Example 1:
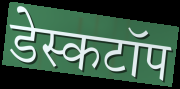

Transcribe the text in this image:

डेस्कटॉप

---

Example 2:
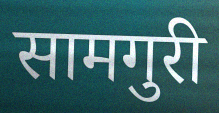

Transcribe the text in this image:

सामगुरी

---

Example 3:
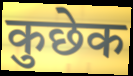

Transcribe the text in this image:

कुछेक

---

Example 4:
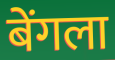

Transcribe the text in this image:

बेंगला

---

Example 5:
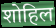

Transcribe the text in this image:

शोहिल